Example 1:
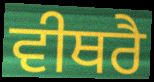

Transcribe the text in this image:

ਵੀਥਰੈ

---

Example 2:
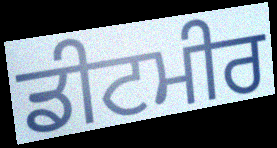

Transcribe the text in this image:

ਡੀਟਮੀਰ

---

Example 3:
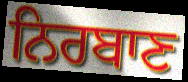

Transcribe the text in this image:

ਨਿਰਬਾਣ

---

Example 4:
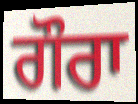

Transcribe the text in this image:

ਗੌਰਾ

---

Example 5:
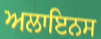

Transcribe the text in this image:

ਅਲਾਇਨਸ